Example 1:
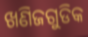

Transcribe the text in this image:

ଖଣିଜଗୁଡିକ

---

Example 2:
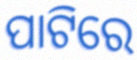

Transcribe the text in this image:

ପାଟିରେ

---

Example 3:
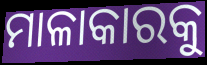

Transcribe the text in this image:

ମାଳାକାରକୁ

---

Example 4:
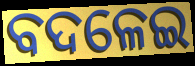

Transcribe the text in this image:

ବଦଳେଇ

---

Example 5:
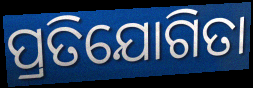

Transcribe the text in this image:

ପ୍ରତିଯୋଗିତା